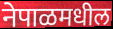
नेपाळमधील